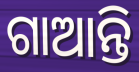
ଗାଆନ୍ତି